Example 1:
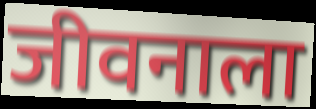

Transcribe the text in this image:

जीवनाला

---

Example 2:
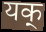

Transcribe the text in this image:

यक्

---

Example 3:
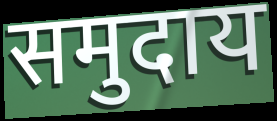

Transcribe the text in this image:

समुदाय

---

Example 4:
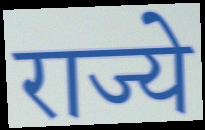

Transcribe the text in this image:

राज्ये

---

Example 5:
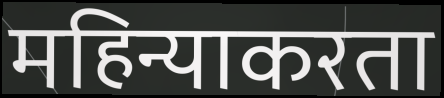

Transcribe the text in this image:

महिन्याकरता